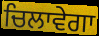
ਚਿਲਾਵੇਗਾ